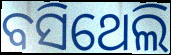
ବସିଥେଲି